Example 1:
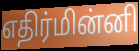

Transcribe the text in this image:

எதிர்மின்னி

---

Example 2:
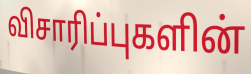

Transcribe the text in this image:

விசாரிப்புகளின்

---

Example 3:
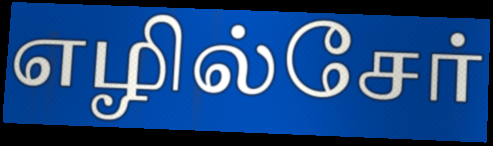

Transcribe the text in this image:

எழில்சேர்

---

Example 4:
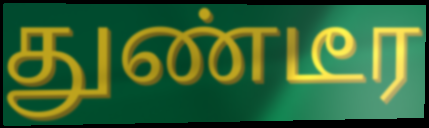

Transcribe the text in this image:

துண்டீர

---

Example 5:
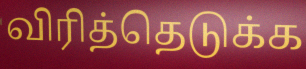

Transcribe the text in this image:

விரித்தெடுக்க